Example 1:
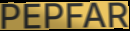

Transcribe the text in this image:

PEPFAR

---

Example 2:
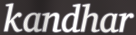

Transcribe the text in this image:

kandhar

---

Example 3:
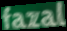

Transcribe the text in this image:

fazal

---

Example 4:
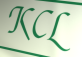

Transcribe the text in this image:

KCL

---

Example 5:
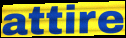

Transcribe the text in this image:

attire